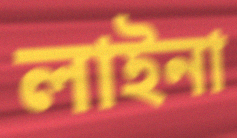
লাইনা